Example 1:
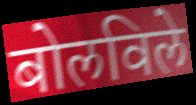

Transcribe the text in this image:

बोलविले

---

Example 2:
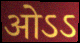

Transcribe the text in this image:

ओऽऽ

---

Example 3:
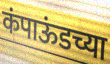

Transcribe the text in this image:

कंपाऊंडच्या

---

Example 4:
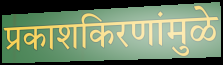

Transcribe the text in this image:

प्रकाशकिरणांमुळे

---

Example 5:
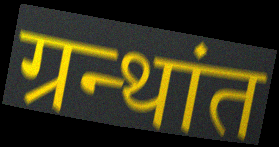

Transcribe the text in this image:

ग्रन्थांत